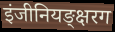
इंजीनियङ्क्षरग